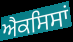
ਐਕਸਿਸਾਂ